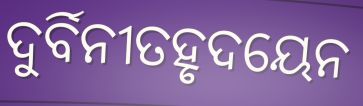
ଦୁର୍ବିନୀତହୃଦୟେନ